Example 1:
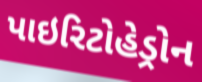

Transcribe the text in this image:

પાઇરિટોહેડ્રોન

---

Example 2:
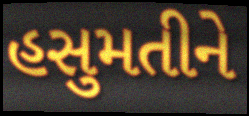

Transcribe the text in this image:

હસુમતીને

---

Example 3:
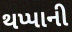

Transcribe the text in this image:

થપ્પાની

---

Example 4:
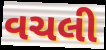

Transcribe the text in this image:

વચલી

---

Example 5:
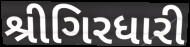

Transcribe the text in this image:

શ્રીગિરધારી